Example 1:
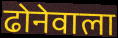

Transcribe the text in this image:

ढोनेवाला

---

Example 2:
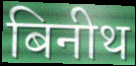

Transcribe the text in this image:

बिनीथ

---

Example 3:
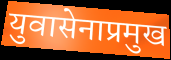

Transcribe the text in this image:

युवासेनाप्रमुख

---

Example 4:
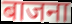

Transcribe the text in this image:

बाजना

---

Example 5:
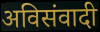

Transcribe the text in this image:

अविसंवादी